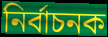
নিৰ্বাচনক